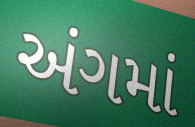
અંગમાં